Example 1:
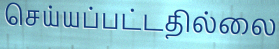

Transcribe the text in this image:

செய்யப்பட்டதில்லை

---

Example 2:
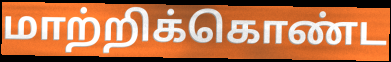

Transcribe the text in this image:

மாற்றிக்கொண்ட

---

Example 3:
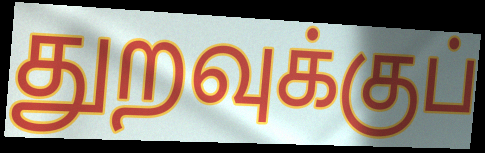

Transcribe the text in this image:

துறவுக்குப்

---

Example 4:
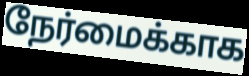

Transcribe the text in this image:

நேர்மைக்காக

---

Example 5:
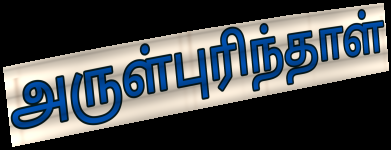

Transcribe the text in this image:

அருள்புரிந்தாள்